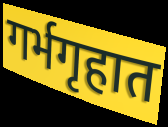
गर्भगृहात